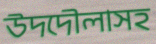
উদদৌলাসহ